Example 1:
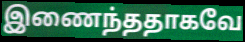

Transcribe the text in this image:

இணைந்ததாகவே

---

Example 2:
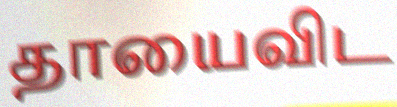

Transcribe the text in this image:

தாயைவிட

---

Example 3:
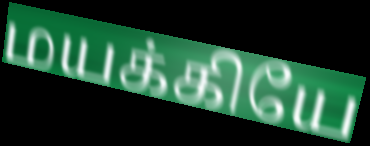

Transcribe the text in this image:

மயக்கியே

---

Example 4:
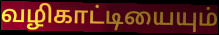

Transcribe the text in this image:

வழிகாட்டியையும்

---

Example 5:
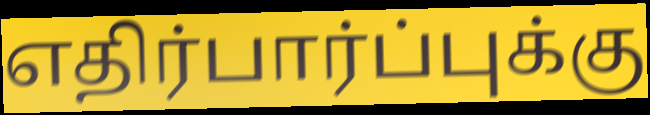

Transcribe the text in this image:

எதிர்பார்ப்புக்கு